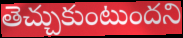
తెచ్చుకుంటుందని